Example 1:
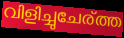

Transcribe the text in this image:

വിളിച്ചുചേര്ത്ത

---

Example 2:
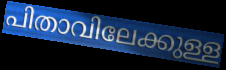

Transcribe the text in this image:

പിതാവിലേക്കുള്ള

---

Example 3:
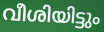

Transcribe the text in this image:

വീശിയിട്ടും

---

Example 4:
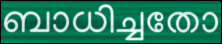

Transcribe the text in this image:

ബാധിച്ചതോ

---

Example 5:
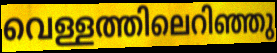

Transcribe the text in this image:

വെള്ളത്തിലെറിഞ്ഞു